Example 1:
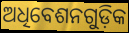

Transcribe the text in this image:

ଅଧିବେଶନଗୁଡ଼ିକ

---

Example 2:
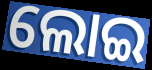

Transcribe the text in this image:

ଲୋଇ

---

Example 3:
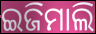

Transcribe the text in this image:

ଇଜିମାଲି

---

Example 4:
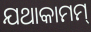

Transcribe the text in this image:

ଯଥାକାମମ୍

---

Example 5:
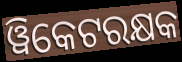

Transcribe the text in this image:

ୱିକେଟରକ୍ଷକ